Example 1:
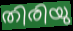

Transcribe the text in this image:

തിരിയു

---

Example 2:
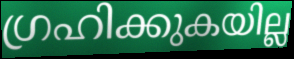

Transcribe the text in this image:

ഗ്രഹിക്കുകയില്ല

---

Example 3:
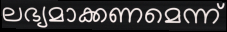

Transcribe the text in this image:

ലഭ്യമാക്കണമെന്ന്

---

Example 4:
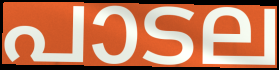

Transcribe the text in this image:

പാടല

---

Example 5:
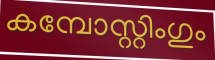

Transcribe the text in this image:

കമ്പോസ്റ്റിംഗും